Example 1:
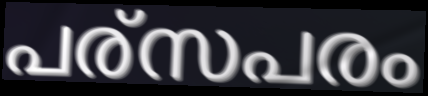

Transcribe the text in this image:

പര്സപരം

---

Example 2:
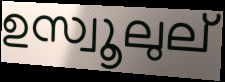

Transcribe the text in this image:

ഉസ്വൂലുല്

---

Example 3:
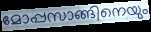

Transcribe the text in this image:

മോപ്പസാങ്ങിനെയും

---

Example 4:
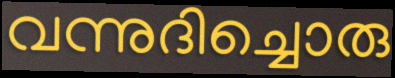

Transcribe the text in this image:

വന്നുദിച്ചൊരു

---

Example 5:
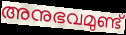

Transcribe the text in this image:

അനുഭവമുണ്ട്